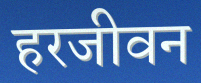
हरजीवन